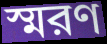
স্মরণ